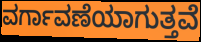
ವರ್ಗಾವಣೆಯಾಗುತ್ತವೆ